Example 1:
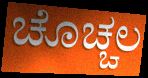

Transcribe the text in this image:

ಚೊಚ್ಚಲ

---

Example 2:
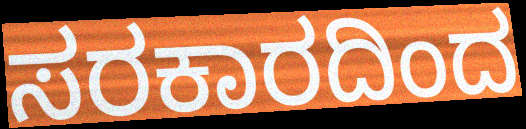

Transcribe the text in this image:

ಸರಕಾರದಿಂದ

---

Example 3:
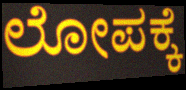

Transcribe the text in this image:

ಲೋಪಕ್ಕೆ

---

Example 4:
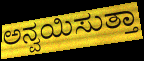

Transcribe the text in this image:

ಅನ್ವಯಿಸುತ್ತಾ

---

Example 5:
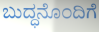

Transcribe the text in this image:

ಬುದ್ಧನೊಂದಿಗೆ